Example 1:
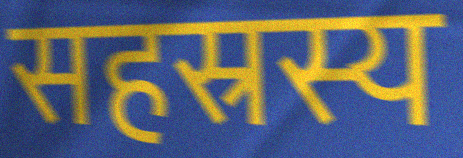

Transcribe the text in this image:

सहस्रस्य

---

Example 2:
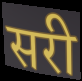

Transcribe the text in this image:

सरी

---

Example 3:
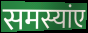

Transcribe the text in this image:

समस्यांए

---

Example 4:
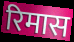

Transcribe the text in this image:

रिमास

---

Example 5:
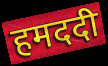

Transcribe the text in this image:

हमददी